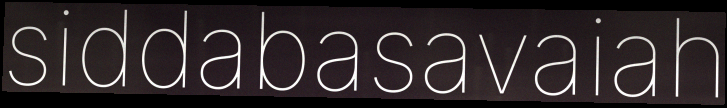
siddabasavaiah